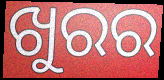
ଖୁରର